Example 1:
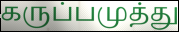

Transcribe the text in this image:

கருப்பமுத்து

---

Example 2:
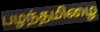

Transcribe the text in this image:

பழந்தமிழை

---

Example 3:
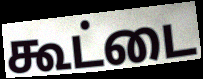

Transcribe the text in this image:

கூட்டை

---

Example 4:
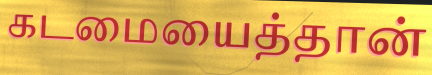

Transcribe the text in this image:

கடமையைத்தான்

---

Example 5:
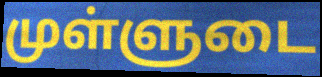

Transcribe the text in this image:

முள்ளுடை